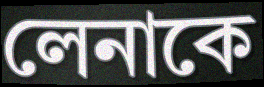
লেনাকে